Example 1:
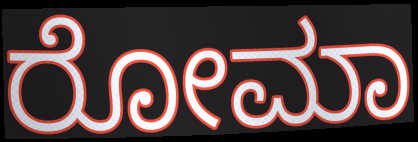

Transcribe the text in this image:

ರೋಮಾ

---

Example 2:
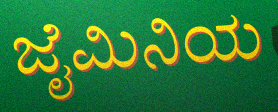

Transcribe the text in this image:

ಜೈಮಿನಿಯ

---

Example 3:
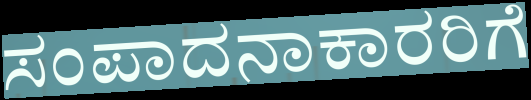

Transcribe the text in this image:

ಸಂಪಾದನಾಕಾರರಿಗೆ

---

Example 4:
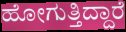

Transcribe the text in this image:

ಹೋಗುತ್ತಿದ್ದಾರೆ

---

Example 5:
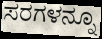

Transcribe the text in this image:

ಸರಗಳನ್ನೂ